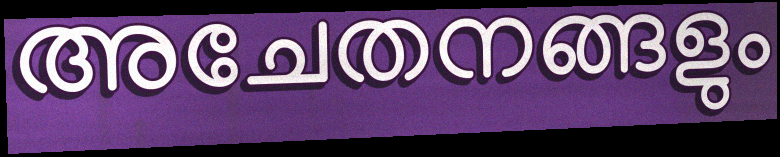
അചേതനങ്ങളും